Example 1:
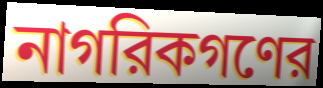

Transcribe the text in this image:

নাগরিকগণের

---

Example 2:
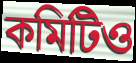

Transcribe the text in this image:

কমিটিও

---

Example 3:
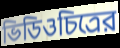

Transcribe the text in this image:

ভিডিওচিত্রের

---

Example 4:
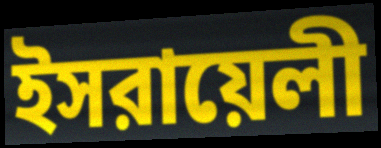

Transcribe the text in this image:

ইসরায়েলী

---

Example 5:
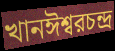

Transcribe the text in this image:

খানঈশ্বরচন্দ্র